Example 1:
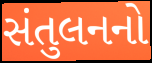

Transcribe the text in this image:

સંતુલનનો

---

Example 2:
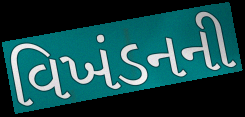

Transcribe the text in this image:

વિખંડનની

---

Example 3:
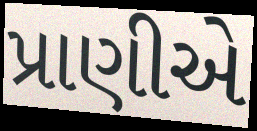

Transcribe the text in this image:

પ્રાણીએ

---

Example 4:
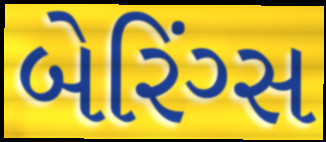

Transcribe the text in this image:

બેરિંગ્સ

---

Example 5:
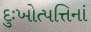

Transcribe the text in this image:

દુઃખોત્પત્તિનાં